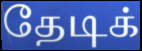
தேடிக்